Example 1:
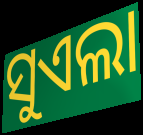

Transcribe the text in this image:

ସୁଏଲା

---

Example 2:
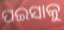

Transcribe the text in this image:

ପଇସାକୁ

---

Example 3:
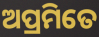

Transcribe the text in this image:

ଅପ୍ରମିତେ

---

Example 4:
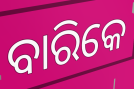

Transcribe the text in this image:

ବାରିକେ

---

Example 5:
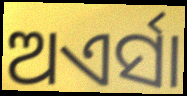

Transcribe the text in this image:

ଅଏର୍ସା